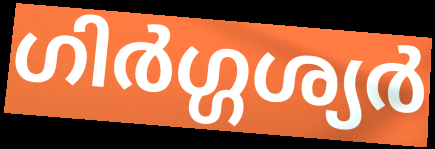
ഗിർഗ്ഗശ്യർ